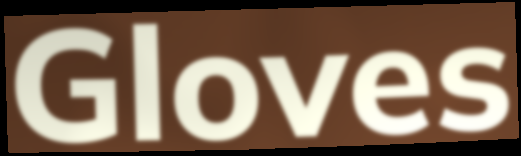
Gloves